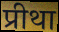
प्रीथा